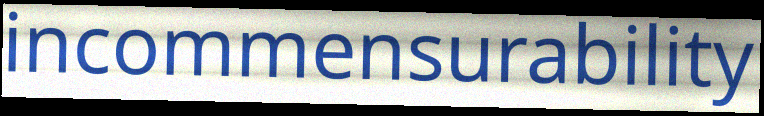
incommensurability